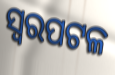
ସ୍ୱରପଟଳ